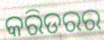
କରିଡରର